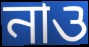
নাও